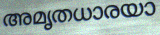
അമൃതധാരയാ